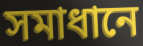
সমাধানে